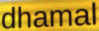
dhamal